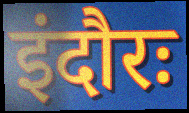
इंदौरः